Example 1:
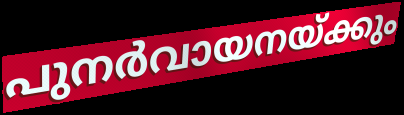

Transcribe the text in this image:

പുനർവായനയ്ക്കും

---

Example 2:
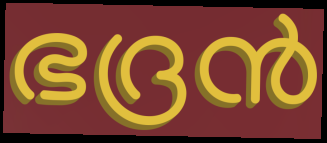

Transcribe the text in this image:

ഭദ്രൻ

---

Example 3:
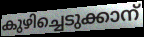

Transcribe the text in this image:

കുഴിച്ചെടുക്കാന്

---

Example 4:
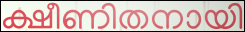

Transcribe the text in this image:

ക്ഷീണിതനായി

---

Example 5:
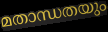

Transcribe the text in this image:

മതാന്ധതയും